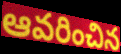
ఆవరించిన